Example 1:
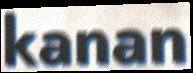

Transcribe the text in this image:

kanan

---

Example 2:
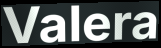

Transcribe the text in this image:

Valera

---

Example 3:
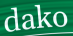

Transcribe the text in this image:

dako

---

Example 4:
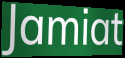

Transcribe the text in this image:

Jamiat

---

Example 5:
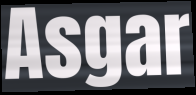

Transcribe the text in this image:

Asgar